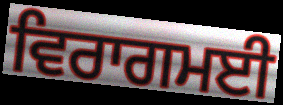
ਵਿਰਾਗਮਈ